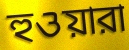
হুওয়ারা